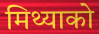
मिथ्याको